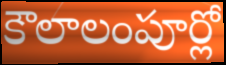
కౌలాలంపూర్లో